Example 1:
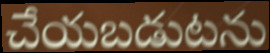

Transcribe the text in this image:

చేయబడుటను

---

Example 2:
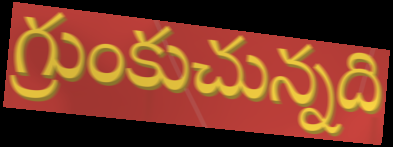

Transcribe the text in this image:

గ్రుంకుచున్నది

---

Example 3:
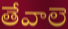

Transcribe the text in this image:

తేవాలె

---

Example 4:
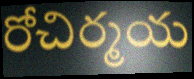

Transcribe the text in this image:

రోచిర్మయ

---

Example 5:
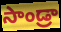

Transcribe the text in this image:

సాండ్రా